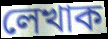
লেখাক